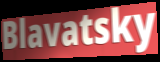
Blavatsky